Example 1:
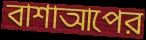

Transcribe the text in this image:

বাশাআপের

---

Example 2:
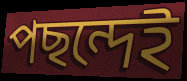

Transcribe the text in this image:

পছন্দেই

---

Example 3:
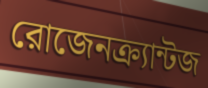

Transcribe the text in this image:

রোজেনক্র্যান্টজ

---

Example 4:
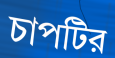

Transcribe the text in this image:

চাপটির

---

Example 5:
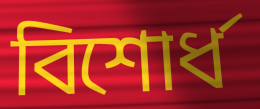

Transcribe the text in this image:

বিশোর্ধ